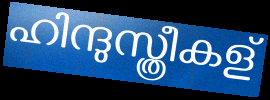
ഹിന്ദുസ്ത്രീകള്